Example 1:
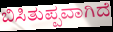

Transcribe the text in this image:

ಬಿಸಿತುಪ್ಪವಾಗಿದೆ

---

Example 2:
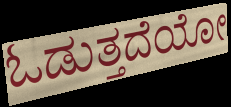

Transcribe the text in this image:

ಓಡುತ್ತದೆಯೋ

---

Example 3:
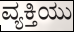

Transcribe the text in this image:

ವ್ಯಕ್ತಿಯು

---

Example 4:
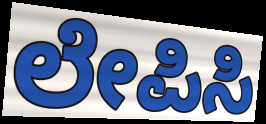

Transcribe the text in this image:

ಲೇಪಿಸಿ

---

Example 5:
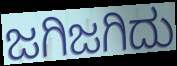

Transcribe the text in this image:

ಜಗಿಜಗಿದು